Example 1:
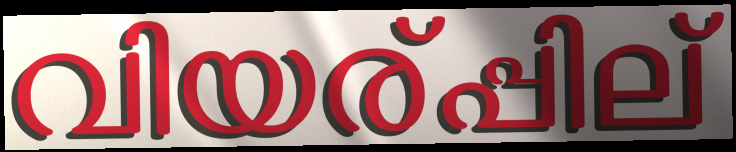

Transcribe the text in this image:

വിയര്പ്പില്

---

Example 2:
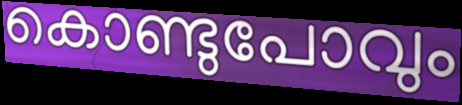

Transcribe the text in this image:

കൊണ്ടുപോവും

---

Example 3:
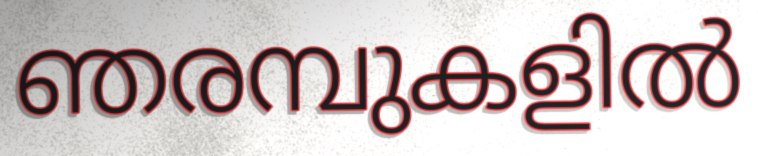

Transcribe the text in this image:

ഞരമ്പുകളിൽ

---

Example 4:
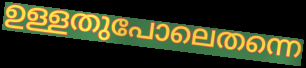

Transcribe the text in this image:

ഉള്ളതുപോലെതന്നെ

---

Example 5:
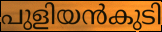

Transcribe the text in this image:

പുളിയൻകുടി